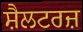
ਸ਼ੈਲਟਰਜ਼